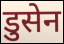
डुसेन